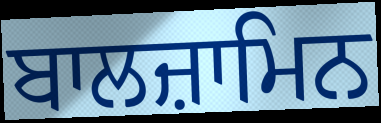
ਬਾਲਜ਼ਾਮਿਨ